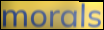
morals